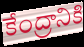
కేంద్రానికి